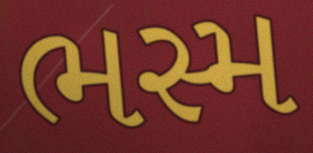
ભસ્મ